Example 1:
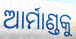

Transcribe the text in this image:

ଆର୍ମାଣ୍ଡକୁ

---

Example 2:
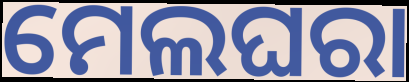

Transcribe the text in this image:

ମେଲଘରା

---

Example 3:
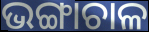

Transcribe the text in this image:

ଭଙ୍ଗାଚାଳ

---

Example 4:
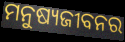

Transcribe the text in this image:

ମନୁଷ୍ୟଜୀବନର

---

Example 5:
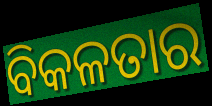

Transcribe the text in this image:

ବିକଳତାର